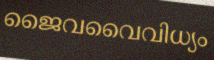
ജൈവവൈവിധ്യം